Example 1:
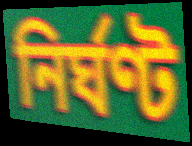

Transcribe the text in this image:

নির্ঘণ্ট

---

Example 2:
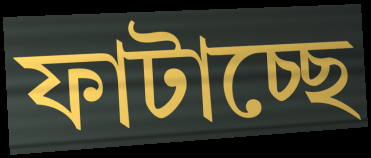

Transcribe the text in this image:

ফাটাচ্ছে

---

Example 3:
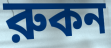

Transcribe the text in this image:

রুকন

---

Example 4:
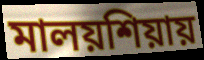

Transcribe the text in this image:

মালয়শিয়ায়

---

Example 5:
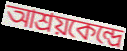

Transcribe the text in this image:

আশ্রয়কেন্দ্রে